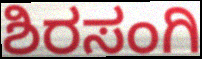
ಶಿರಸಂಗಿ